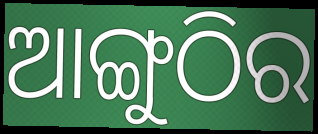
ଆଙ୍ଗୁଠିର